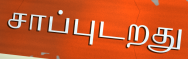
சாப்புடறது